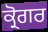
ਕ੍ਰੋਗਰ